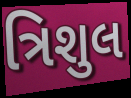
ત્રિશુલ